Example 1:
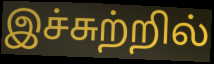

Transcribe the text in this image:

இச்சுற்றில்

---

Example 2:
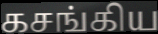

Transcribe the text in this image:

கசங்கிய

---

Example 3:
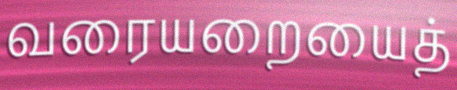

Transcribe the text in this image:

வரையறையைத்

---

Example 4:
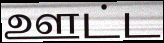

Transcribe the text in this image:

ஊட்ட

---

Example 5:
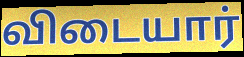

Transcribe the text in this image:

விடையார்